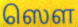
ஸௌ